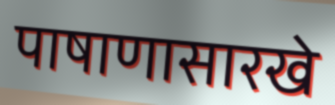
पाषाणासारखे